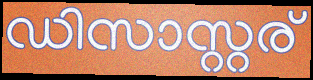
ഡിസാസ്റ്റര്